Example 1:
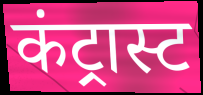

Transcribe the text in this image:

कंट्रास्ट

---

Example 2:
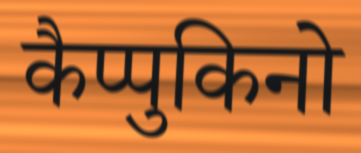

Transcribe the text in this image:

कैप्पुकिनो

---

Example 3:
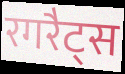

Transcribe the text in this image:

रगरैट्स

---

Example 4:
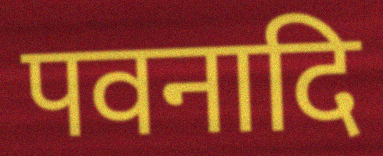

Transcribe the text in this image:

पवनादि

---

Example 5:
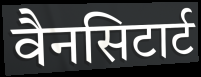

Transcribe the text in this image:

वैनसिटार्ट